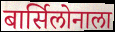
बार्सिलोनाला